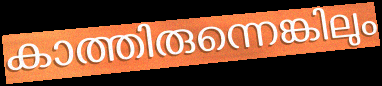
കാത്തിരുന്നെങ്കിലും